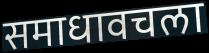
समाधावचला